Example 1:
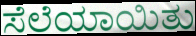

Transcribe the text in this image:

ಸೆಲೆಯಾಯಿತು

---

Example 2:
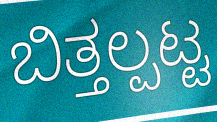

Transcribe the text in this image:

ಬಿತ್ತಲ್ಪಟ್ಟ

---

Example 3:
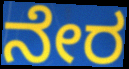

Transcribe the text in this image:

ನೇರ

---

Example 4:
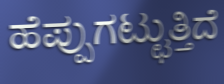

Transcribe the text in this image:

ಹೆಪ್ಪುಗಟ್ಟುತ್ತಿದೆ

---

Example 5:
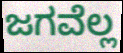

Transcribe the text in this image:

ಜಗವೆಲ್ಲ